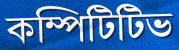
কম্পিটিটিভ